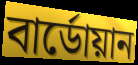
বার্ডোয়ান